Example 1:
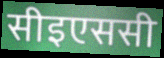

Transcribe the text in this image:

सीइएससी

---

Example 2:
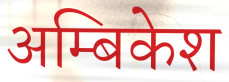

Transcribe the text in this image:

अम्बिकेश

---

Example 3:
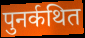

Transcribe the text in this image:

पुनर्कथित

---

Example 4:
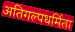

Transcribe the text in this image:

अतिगल्पधर्मिता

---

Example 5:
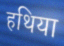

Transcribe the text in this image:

हथिया